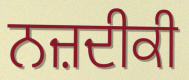
ਨਜ਼ਦੀਕੀ